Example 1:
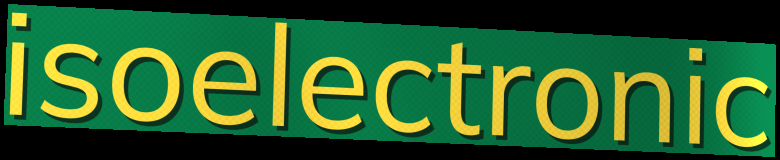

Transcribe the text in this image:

isoelectronic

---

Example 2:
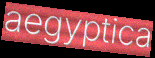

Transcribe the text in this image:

aegyptica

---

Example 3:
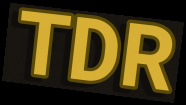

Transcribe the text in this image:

TDR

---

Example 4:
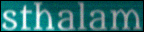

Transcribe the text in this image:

sthalam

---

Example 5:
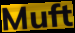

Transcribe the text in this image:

Muft